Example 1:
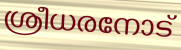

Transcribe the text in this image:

ശ്രീധരനോട്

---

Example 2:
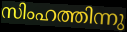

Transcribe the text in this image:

സിംഹത്തിന്നു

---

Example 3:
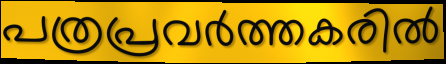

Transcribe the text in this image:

പത്രപ്രവർത്തകരിൽ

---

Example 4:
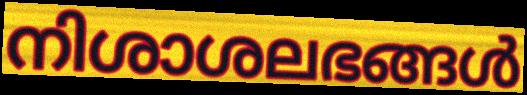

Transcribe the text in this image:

നിശാശലഭങ്ങൾ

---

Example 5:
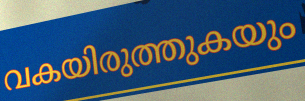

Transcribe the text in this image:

വകയിരുത്തുകയും